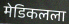
मेडिकलला